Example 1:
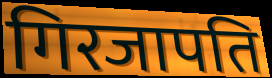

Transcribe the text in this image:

गिरजापति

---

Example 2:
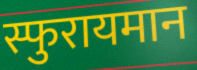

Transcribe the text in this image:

स्फुरायमान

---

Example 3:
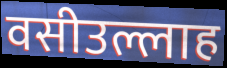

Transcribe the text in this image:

वसीउल्लाह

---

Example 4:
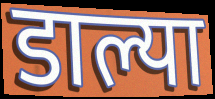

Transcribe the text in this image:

डाल्या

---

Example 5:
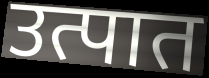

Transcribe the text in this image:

उत्पात